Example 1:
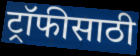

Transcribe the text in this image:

ट्रॉफीसाठी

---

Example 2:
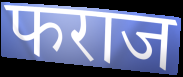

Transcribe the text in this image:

फराज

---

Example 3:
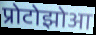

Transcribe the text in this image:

प्रोटोझोआ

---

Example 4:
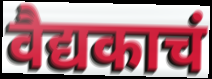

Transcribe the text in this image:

वैद्यकाचं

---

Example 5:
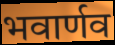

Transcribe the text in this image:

भवार्णव